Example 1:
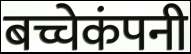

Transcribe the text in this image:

बच्चेकंपनी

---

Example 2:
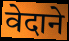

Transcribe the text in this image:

वेदाने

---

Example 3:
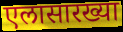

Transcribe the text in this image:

एलासारख्या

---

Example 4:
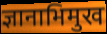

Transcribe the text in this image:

ज्ञानाभिमुख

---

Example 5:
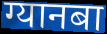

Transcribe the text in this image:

ग्यानबा